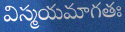
విస్మయమాగతః